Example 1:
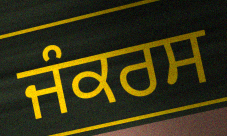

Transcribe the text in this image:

ਜੰਕਰਸ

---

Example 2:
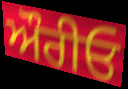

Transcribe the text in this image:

ਔਰੀਓ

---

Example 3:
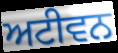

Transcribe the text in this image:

ਅਟੀਵਨ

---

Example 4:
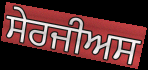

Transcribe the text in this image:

ਸੇਰਜੀਅਸ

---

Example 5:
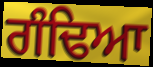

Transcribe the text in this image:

ਗੰਢਿਆ